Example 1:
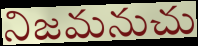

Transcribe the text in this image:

నిజమనుచు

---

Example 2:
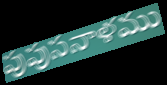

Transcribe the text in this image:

పుపుసనాళము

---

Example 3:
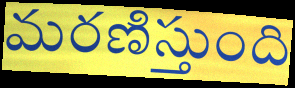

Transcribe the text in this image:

మరణిస్తుంది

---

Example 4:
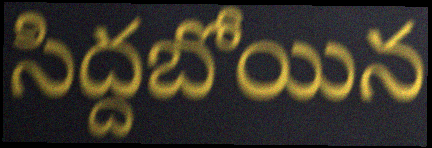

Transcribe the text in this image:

సిద్దబోయిన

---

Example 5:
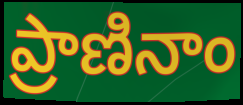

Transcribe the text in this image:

ప్రాణినాం